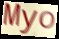
Myo